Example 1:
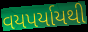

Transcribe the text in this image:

વયપર્યાયથી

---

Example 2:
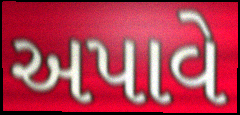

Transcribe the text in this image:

અપાવે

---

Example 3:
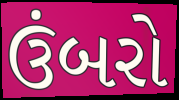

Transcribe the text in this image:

ઉંબરો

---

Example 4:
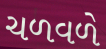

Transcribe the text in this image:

ચળવળે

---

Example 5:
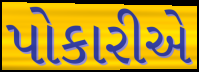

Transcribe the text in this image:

પોકારીએ